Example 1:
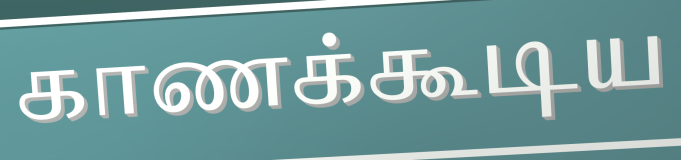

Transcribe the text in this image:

காணக்கூடிய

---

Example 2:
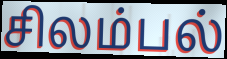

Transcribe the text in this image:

சிலம்பல்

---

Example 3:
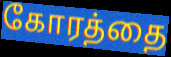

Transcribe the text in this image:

கோரத்தை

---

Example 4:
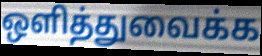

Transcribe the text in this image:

ஒளித்துவைக்க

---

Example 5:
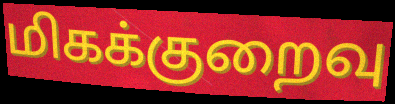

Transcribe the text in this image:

மிகக்குறைவு